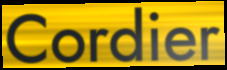
Cordier